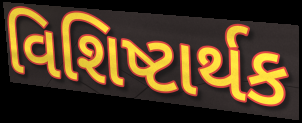
વિશિષ્ટાર્થક